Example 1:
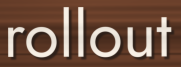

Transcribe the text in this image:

rollout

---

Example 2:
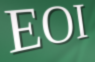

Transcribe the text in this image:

EOI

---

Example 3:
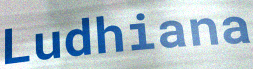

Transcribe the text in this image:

Ludhiana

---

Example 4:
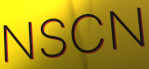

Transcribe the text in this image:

NSCN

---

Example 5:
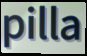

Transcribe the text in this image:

pilla